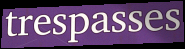
trespasses